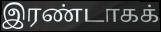
இரண்டாகக்